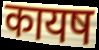
कायष